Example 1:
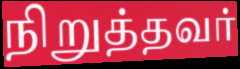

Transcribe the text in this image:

நிறுத்தவர்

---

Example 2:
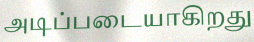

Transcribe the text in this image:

அடிப்படையாகிறது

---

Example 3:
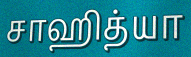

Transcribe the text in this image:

சாஹித்யா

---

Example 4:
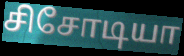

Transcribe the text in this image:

சிசோடியா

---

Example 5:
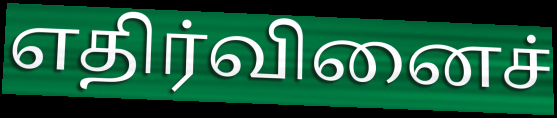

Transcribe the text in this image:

எதிர்வினைச்